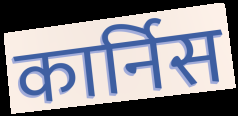
कार्निस